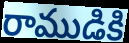
రాముడికి